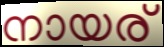
നായര്